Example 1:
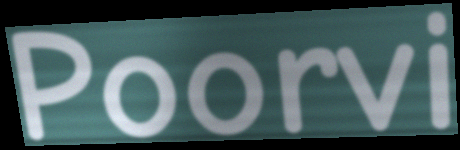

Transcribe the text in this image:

Poorvi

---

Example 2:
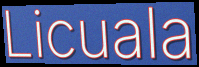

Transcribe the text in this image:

Licuala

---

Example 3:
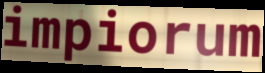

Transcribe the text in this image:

impiorum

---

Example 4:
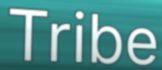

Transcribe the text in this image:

Tribe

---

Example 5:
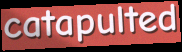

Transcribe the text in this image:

catapulted